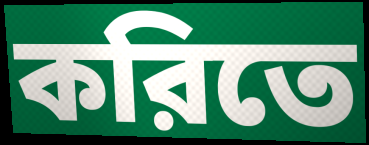
করিতে